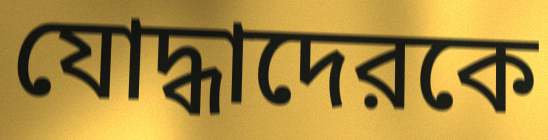
যোদ্ধাদেরকে